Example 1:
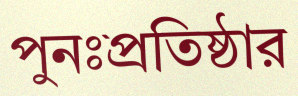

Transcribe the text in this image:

পুনঃপ্রতিষ্ঠার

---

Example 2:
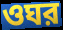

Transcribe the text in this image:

ওঘর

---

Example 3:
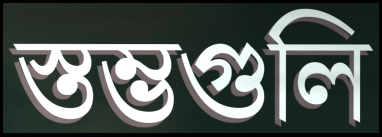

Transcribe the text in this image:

স্তম্ভগুলি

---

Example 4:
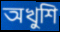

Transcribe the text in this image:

অখুশি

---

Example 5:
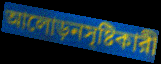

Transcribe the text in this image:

আলোড়নসৃষ্টিকারী